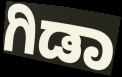
ಗಿಡಾ